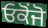
ਓਕੋਂਜੋ